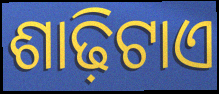
ଶାଢ଼ିଟାଏ